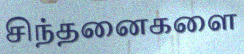
சிந்தனைகளை